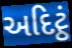
અદિટ્ઠં